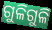
ଗୁଳିଗୁଳି